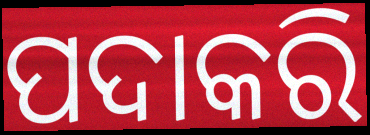
ପଦାକରି